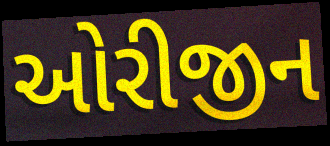
ઓરીજીન